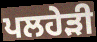
ਪਲਹੇੜੀ